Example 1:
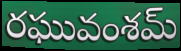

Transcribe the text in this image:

రఘువంశమ్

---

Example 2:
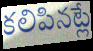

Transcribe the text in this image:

కలిపినట్లే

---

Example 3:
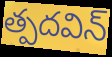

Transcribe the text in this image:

త్పదవిన్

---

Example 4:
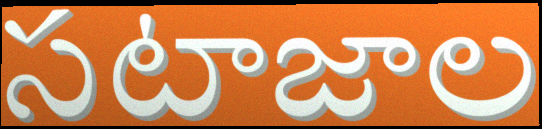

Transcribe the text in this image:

సటాజాల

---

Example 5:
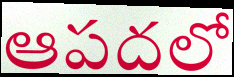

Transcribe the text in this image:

ఆపదలో